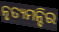
ନୃତ୍ୟମନ୍ଦିର